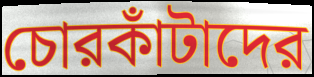
চোরকাঁটাদের